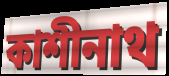
কাশীনাথ